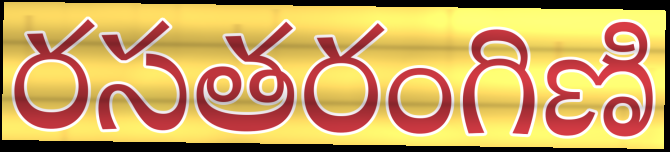
రసతరంగిణి